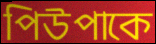
পিউপাকে